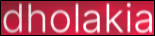
dholakia